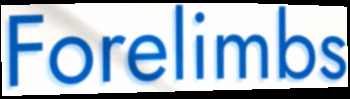
Forelimbs